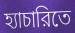
হ্যাচারিতে